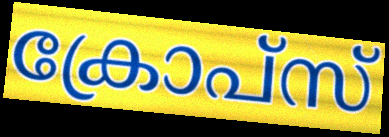
ക്രോപ്സ്